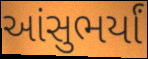
આંસુભર્યાં